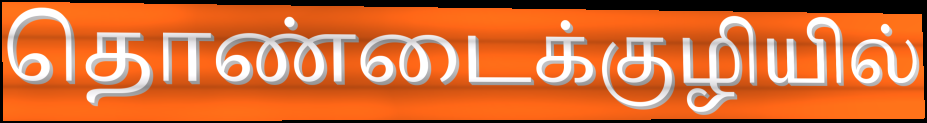
தொண்டைக்குழியில்